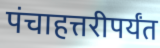
पंचाहत्तरीपर्यंत